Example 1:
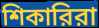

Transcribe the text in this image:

শিকারিরা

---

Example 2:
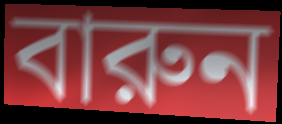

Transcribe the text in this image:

বারুন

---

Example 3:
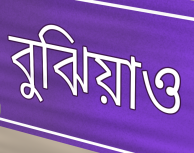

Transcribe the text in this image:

বুঝিয়াও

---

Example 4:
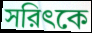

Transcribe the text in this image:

সরিৎকে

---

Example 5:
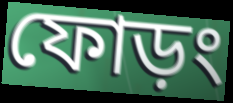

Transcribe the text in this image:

ফোড়ং